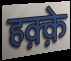
हक़्क़े